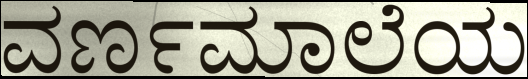
ವರ್ಣಮಾಲೆಯ